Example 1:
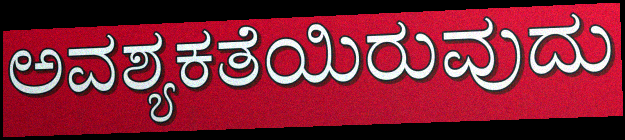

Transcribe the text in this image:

ಅವಶ್ಯಕತೆಯಿರುವುದು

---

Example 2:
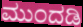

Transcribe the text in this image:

ಮುಂದಡಿ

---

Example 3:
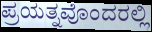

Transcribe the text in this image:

ಪ್ರಯತ್ನವೊಂದರಲ್ಲಿ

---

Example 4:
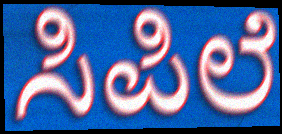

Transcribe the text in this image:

ಸಿಪಿಲೆ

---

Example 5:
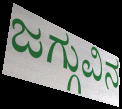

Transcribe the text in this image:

ಜಗ್ಗುವಿನ